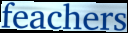
feachers